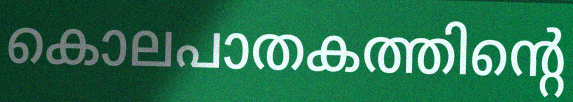
കൊലപാതകത്തിന്റെ